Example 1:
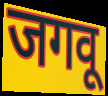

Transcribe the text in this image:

जगवू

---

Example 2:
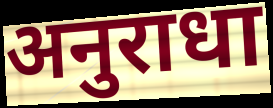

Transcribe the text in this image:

अनुराधा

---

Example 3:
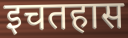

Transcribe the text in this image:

इचतहास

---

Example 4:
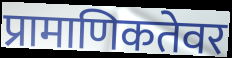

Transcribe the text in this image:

प्रामाणिकतेवर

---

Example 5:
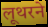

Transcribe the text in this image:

लूथरने